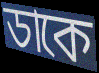
ডাকে